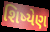
શિષ્યેણ